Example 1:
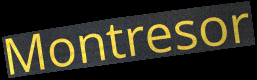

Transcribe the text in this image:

Montresor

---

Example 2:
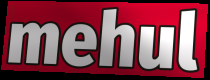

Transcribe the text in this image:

mehul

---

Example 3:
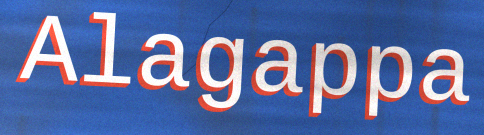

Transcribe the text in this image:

Alagappa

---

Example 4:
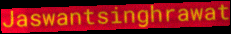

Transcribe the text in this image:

Jaswantsinghrawat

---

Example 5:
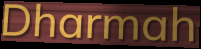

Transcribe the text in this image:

Dharmah